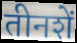
तीनशें